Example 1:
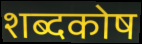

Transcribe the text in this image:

शब्दकोष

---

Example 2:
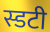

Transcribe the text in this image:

स्डटी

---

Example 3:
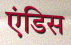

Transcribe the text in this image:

एंडिस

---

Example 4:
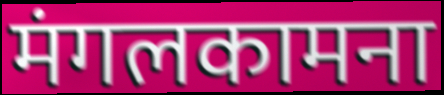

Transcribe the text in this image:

मंगलकामना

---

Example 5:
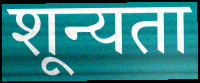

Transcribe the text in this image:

शून्‍यता